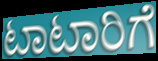
ಟಾಟಾರಿಗೆ